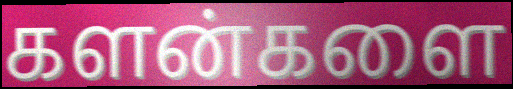
களன்களை